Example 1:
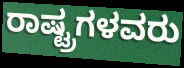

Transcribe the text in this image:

ರಾಷ್ಟ್ರಗಳವರು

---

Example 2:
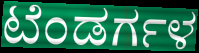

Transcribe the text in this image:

ಟೆಂಡರ್ಗಳ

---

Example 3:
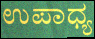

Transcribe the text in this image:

ಉಪಾಧ್ಯ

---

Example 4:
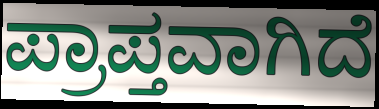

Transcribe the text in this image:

ಪ್ರಾಪ್ತವಾಗಿದೆ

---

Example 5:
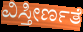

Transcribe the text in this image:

ವಿಸ್ತೀರ್ಣತೆ